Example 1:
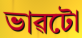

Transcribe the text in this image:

ভাৱটো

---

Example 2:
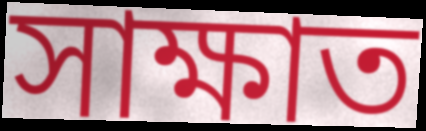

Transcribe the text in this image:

সাক্ষাত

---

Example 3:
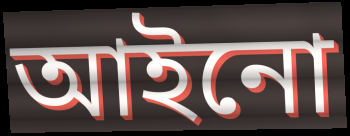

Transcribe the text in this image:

আইনো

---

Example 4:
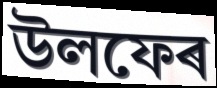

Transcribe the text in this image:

উলফেৰ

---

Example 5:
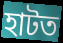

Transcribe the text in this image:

হাটত